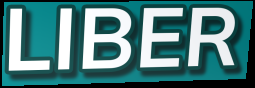
LIBER